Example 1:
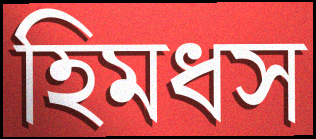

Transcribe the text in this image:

হিমধস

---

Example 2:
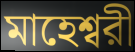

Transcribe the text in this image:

মাহেশ্বরী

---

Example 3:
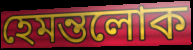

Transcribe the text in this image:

হেমন্তলোক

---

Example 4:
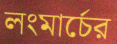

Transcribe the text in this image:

লংমার্চের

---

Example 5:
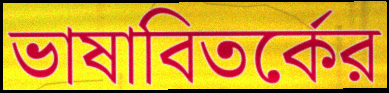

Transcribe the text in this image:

ভাষাবিতর্কের